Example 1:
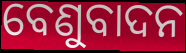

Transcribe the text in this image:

ବେଣୁବାଦନ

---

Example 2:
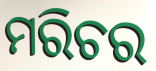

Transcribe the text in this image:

ମରିଚର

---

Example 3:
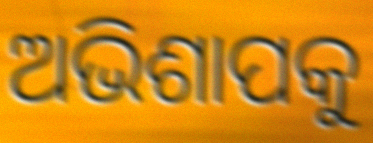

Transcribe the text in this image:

ଅଭିଶାପକୁ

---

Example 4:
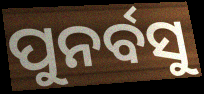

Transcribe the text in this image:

ପୁନର୍ବସୁ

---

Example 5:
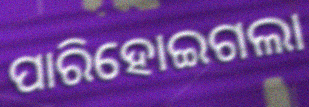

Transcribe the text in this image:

ପାରିହୋଇଗଲା